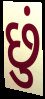
છું